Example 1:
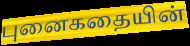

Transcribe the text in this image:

புனைகதையின்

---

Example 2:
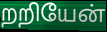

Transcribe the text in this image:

றறியேன்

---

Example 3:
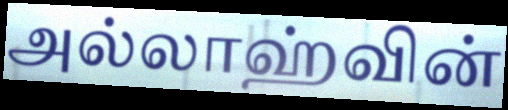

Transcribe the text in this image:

அல்லாஹ்வின்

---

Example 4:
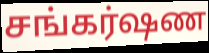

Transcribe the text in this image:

சங்கர்ஷண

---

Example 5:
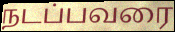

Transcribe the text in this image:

நடப்பவரை